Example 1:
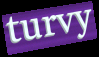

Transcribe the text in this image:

turvy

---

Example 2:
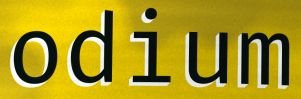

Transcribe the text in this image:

odium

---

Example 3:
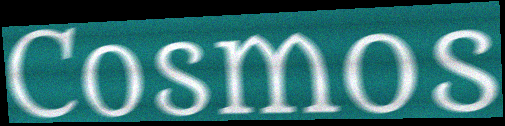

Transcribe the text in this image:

Cosmos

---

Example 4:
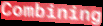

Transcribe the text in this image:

Combining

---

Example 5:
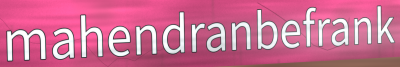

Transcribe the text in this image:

mahendranbefrank